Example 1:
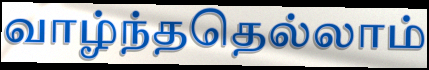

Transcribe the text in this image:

வாழ்ந்ததெல்லாம்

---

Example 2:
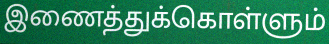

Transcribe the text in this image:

இணைத்துக்கொள்ளும்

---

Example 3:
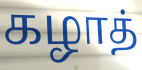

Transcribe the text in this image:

கழாத்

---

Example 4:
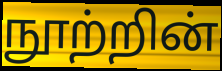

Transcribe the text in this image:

நூற்றின்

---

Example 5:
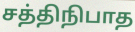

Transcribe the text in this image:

சத்திநிபாத